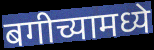
बगीच्यामध्ये